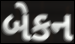
બેકન